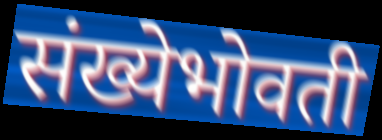
संख्येभोवती